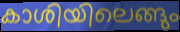
കാശിയിലെങ്ങും